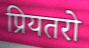
प्रियतरो